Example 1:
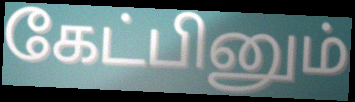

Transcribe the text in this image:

கேட்பினும்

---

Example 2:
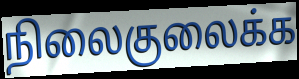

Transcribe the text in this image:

நிலைகுலைக்க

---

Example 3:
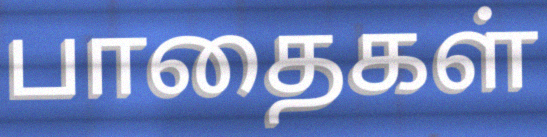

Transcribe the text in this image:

பாதைகள்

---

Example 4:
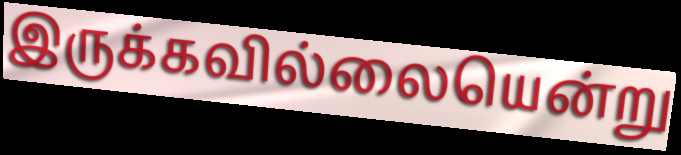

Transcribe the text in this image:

இருக்கவில்லையென்று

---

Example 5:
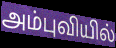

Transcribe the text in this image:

அம்புவியில்